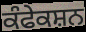
ਕੰਫੇਕਸ਼ਨ